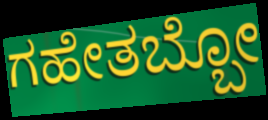
ಗಹೇತಬ್ಬೋ